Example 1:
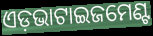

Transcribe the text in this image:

ଏଡ଼ଭାଟାଇଜମେଣ୍ଟ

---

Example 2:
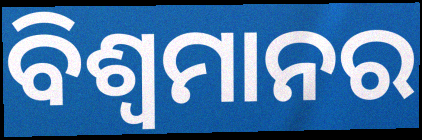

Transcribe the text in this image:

ବିଶ୍ୱମାନର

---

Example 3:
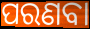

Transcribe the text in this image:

ପରଣବା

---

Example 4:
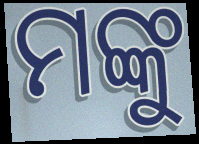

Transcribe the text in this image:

ମଙ୍କୁ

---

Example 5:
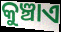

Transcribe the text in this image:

କୁଞ୍ଚାଏ